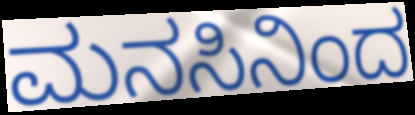
ಮನಸಿನಿಂದ